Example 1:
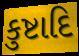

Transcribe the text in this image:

કુષ્ટાદિ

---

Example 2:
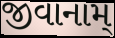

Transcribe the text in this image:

જીવાનામ્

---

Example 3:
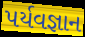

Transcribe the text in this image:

પર્યવજ્ઞાન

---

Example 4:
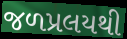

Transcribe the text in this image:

જળપ્રલયથી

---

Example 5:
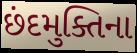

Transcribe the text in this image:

છંદમુક્તિના